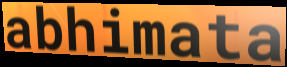
abhimata